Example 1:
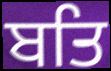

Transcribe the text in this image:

ਬਤਿ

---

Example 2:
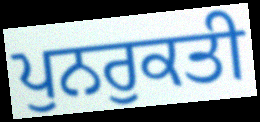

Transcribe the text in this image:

ਪੁਨਰੁਕਤੀ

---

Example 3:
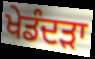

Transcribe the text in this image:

ਖੇਡੰਦੜਾ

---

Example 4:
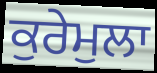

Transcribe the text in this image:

ਕੁਰੇਮੁਲਾ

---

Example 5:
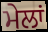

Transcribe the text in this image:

ਮੇਲਾਂ